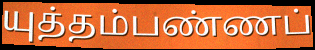
யுத்தம்பண்ணப்